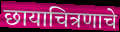
छायाचित्रणाचे